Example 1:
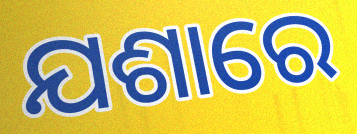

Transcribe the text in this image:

ଯଶାରେ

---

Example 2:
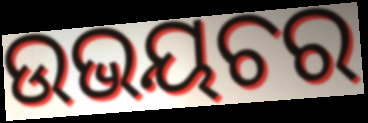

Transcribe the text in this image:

ଉଭୟଚର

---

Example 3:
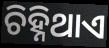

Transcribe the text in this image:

ଚିହ୍ନିଥାଏ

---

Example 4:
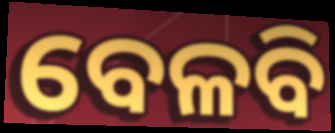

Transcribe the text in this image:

ବେଳବି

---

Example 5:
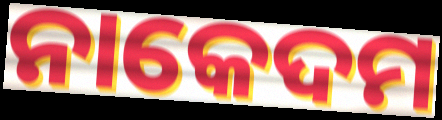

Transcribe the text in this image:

ନାକେଦମ